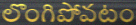
లొంగిపోవటం